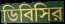
ডিবিসির